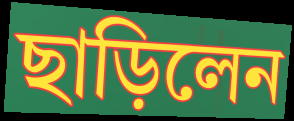
ছাড়িলেন